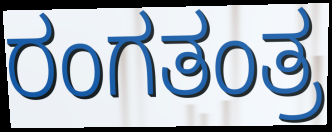
ರಂಗತಂತ್ರ